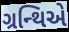
ગ્રન્થિએ